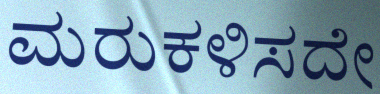
ಮರುಕಳಿಸದೇ